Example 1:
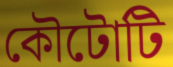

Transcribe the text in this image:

কৌটোটি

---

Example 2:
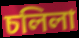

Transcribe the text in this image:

চলিলা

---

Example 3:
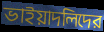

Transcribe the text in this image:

ভাইয়াদলিদের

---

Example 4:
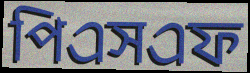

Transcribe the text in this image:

পিএসএফ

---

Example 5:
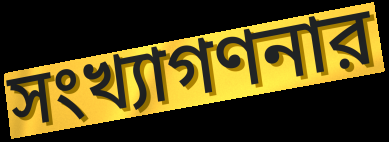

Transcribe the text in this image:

সংখ্যাগণনার